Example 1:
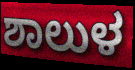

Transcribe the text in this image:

ಶಾಲುಳ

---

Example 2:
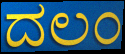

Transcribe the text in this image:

ದಲಂ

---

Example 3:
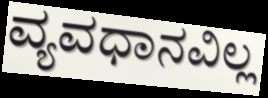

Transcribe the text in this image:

ವ್ಯವಧಾನವಿಲ್ಲ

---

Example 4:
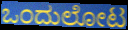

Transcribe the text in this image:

ಒಂದುಲೋಟ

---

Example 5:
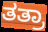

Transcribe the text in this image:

ತತ್ರಾ